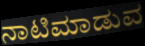
ನಾಟಿಮಾಡುವ